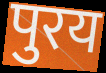
पुरय